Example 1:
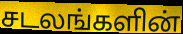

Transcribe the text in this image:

சடலங்களின்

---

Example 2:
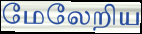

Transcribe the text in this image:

மேலேறிய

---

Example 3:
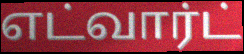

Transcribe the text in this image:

எட்வார்ட்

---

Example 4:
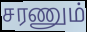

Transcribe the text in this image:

சரணும்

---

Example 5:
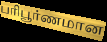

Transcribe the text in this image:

பரிபூர்ணமான